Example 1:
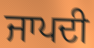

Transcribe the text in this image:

ਜਾਪਦੀ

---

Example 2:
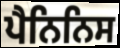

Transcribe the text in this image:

ਪੈਨਿਨਿਸ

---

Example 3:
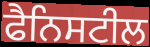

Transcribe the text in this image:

ਫੈਨਿਸਟੀਲ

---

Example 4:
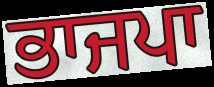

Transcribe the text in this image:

ਭਾਜਪਾ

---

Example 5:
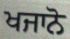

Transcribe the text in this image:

ਖਜਾਨੋ